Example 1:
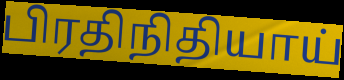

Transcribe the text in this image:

பிரதிநிதியாய்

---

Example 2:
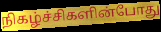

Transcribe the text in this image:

நிகழ்ச்சிகளின்போது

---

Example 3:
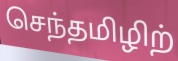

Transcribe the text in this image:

செந்தமிழிற்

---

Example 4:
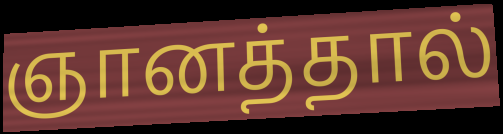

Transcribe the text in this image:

ஞானத்தால்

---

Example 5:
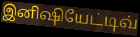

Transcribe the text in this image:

இனிஷியேட்டிவ்